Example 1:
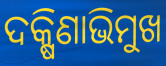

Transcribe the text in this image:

ଦକ୍ଷିଣାଭିମୁଖ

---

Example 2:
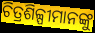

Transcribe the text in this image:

ଚିତ୍ରଶିଳ୍ପୀମାନଙ୍କୁ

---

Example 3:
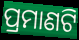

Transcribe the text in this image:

ପ୍ରମାଣଟି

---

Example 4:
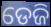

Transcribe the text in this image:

ଡେଜି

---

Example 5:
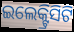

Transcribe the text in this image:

ଇଲେକ୍ଟ୍ରିସିଟି